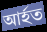
আর্হত